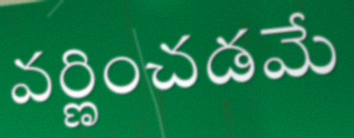
వర్ణించడమే